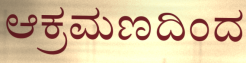
ಆಕ್ರಮಣದಿಂದ